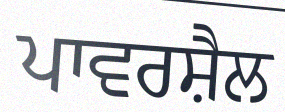
ਪਾਵਰਸ਼ੈਲ